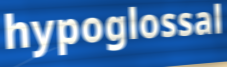
hypoglossal